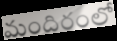
మందిరంలో